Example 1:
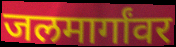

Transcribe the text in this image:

जलमार्गांवर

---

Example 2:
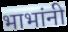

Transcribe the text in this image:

भाभांनी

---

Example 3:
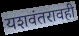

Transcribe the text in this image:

यशवंतरावही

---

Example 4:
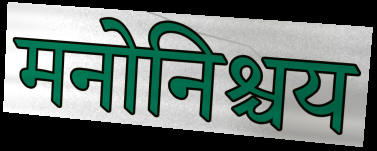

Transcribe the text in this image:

मनोनिश्चय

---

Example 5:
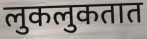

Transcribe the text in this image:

लुकलुकतात